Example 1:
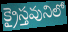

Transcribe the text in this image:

క్రైస్తవునిలో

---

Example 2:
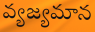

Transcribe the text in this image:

వ్యజ్యమాన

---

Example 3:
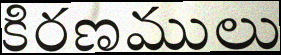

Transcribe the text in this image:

కిరణములు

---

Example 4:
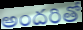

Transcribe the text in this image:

అందరితో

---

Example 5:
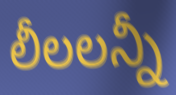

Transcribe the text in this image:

లీలలన్నీ